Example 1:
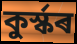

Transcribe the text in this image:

কুৰ্স্কৰ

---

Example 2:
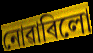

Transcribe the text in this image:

নোৱাৰিলো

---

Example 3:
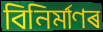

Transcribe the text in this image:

বিনিৰ্মাণৰ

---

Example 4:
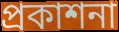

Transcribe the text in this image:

প্ৰকাশনা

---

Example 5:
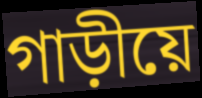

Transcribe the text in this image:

গাড়ীয়ে